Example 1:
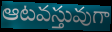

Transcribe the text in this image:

ఆటవస్తువుగా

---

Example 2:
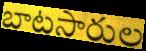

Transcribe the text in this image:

బాటసారుల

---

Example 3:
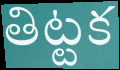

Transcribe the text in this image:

తిట్టక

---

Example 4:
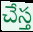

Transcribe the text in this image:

చేస్త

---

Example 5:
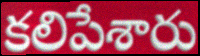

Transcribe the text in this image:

కలిపేశారు